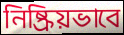
নিষ্ক্রিয়ভাবে